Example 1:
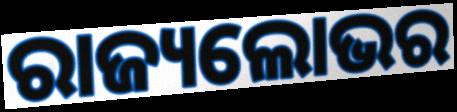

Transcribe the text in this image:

ରାଜ୍ୟଲୋଭର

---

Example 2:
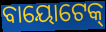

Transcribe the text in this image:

ବାୟୋଟେକ୍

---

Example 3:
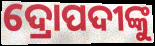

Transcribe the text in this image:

ଦ୍ରୋପଦୀଙ୍କୁ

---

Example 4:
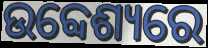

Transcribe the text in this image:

ଉବ୍ଦେଶ୍ୟରେ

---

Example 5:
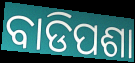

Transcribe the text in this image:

ବାଡିପଶା